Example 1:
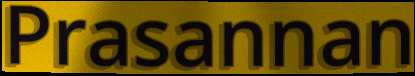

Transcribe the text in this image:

Prasannan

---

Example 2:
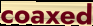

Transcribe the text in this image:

coaxed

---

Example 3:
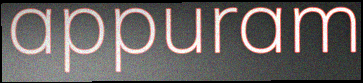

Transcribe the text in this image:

appuram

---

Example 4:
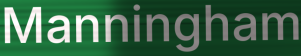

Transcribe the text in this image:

Manningham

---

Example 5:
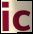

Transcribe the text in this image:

ic